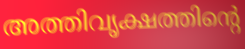
അത്തിവൃക്ഷത്തിന്റെ